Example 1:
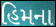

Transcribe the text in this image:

હિમના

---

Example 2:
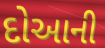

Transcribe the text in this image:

દોઆની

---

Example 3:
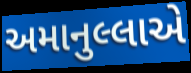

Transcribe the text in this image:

અમાનુલ્લાએ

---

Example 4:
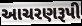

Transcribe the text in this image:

આચરણરૂપી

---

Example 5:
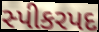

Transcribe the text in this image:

સ્પીકરપદ